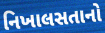
નિખાલસતાનો